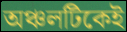
অঞ্চলটিকেই